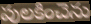
పులకించెను